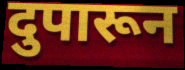
दुपारून